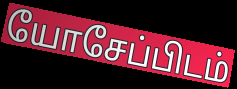
யோசேப்பிடம்